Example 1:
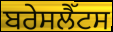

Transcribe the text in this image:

ਬਰੇਸਲੈੱਟਸ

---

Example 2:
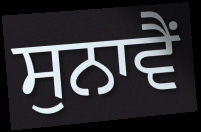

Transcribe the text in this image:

ਸੁਨਾਵੈਂ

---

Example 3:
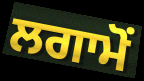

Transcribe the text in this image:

ਲਗਾਮੋਂ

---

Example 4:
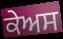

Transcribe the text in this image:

ਕੇਅਸ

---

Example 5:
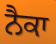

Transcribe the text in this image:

ਨੈਕਾ